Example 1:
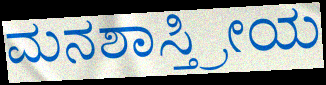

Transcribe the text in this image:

ಮನಶಾಸ್ತ್ರೀಯ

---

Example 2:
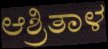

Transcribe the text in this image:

ಆಶ್ರಿತಾಳ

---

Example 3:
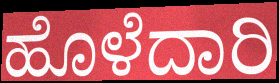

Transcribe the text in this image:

ಹೊಳೆದಾರಿ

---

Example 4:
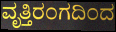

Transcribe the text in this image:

ವೃತ್ತಿರಂಗದಿಂದ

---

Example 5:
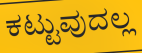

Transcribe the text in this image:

ಕಟ್ಟುವುದಲ್ಲ